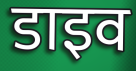
डाइव